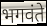
भगवंते